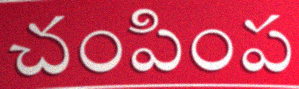
చంపింప